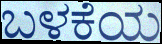
ಬಳಕೆಯ